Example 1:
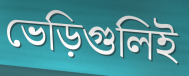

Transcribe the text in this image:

ভেড়িগুলিই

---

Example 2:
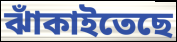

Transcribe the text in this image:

ঝাঁকাইতেছে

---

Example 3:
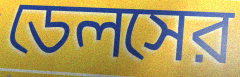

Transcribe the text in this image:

ডেলসের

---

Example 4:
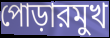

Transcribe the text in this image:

পোড়ারমুখ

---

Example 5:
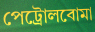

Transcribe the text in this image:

পেট্রোলবোমা